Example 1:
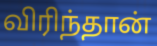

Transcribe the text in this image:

விரிந்தான்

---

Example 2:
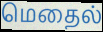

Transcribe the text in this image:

மெதைல்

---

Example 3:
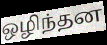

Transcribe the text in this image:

ஒழிந்தன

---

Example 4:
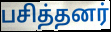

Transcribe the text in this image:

பசித்தனர்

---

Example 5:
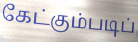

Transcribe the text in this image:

கேட்கும்படிப்